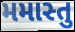
મમાસ્તુ